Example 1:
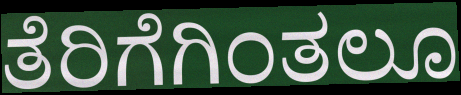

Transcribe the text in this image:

ತೆರಿಗೆಗಿಂತಲೂ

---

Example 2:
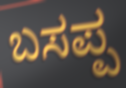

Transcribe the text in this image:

ಬಸಪ್ಪ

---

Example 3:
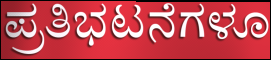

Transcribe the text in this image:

ಪ್ರತಿಭಟನೆಗಳೂ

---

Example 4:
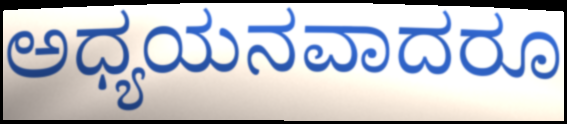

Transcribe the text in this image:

ಅಧ್ಯಯನವಾದರೂ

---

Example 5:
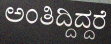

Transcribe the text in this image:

ಅಂತಿದ್ದಿದ್ದರೆ